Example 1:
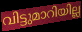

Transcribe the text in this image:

വിട്ടുമാറിയില്ല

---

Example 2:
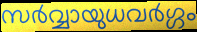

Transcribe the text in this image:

സർവ്വായുധവർഗ്ഗം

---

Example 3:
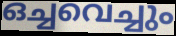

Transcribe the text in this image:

ഒച്ചവെച്ചും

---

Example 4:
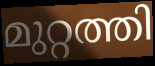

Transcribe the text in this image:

മുറ്റത്തി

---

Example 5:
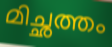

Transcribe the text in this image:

മിച്ഛത്തം